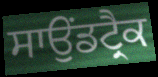
ਸਾਉਂਡਟ੍ਰੈਕ